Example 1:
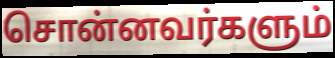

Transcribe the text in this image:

சொன்னவர்களும்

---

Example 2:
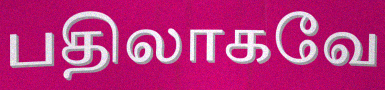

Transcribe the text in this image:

பதிலாகவே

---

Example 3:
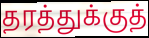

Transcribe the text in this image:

தரத்துக்குத்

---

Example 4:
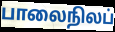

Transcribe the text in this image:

பாலைநிலப்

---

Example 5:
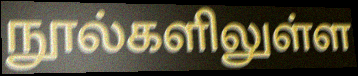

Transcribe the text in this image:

நூல்களிலுள்ள